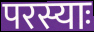
परस्याः